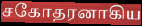
சகோதரனாகிய